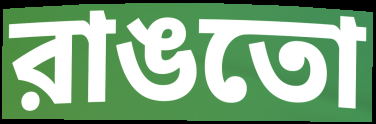
রাঙতো